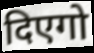
दिएगो